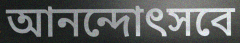
আনন্দোৎসবে